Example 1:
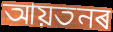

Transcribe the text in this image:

আয়তনৰ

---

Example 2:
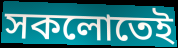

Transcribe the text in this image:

সকলোতেই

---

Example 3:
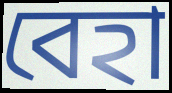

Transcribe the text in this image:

বেহা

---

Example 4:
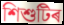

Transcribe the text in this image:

শিশুটিৰ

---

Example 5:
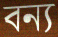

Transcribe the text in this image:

বন্য